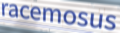
racemosus